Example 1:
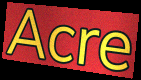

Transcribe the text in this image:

Acre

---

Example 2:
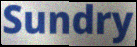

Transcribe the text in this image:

Sundry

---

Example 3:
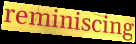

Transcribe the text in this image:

reminiscing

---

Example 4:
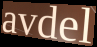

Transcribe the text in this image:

avdel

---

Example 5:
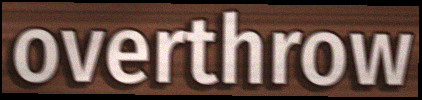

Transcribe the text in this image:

overthrow